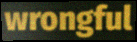
wrongful